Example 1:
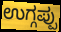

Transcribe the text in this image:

ಉಗ್ಗಪ್ಪು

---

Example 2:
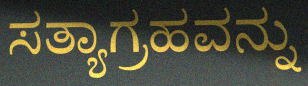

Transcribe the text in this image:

ಸತ್ಯಾಗ್ರಹವನ್ನು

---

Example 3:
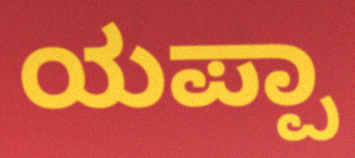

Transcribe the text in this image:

ಯಪ್ಪಾ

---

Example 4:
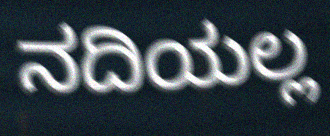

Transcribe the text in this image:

ನದಿಯಲ್ಲ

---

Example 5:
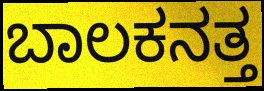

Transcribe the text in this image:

ಬಾಲಕನತ್ತ